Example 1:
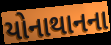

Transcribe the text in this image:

યોનાથાનના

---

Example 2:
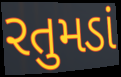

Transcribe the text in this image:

રતુમડાં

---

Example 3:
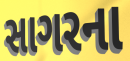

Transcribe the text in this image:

સાગરના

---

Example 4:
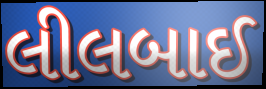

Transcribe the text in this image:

લીલબાઈ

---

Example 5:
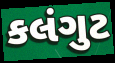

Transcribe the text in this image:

કલંગુટ